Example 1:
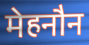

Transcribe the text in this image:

मेहनौन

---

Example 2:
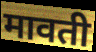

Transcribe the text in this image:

मावती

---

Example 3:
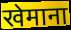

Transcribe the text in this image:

खेमाना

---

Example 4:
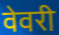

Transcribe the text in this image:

वेवरी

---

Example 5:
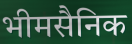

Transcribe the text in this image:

भीमसैनिक